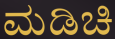
ಮಡಿಚಿ